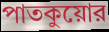
পাতকুয়োর